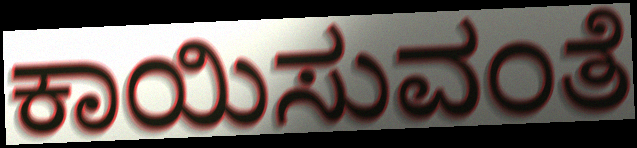
ಕಾಯಿಸುವಂತೆ